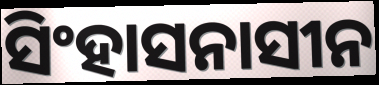
ସିଂହାସନାସୀନ